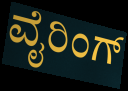
ವೈರಿಂಗ್